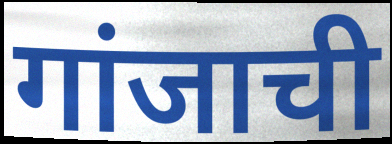
गांजाची